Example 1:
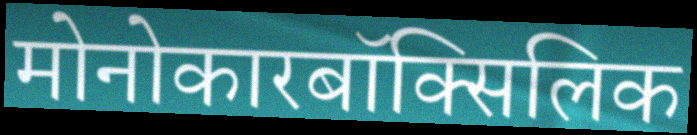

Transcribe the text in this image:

मोनोकारबॉक्सिलिक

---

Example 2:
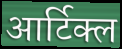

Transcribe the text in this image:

आर्टिक्ल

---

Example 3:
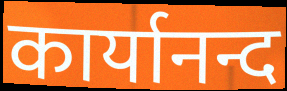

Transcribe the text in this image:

कार्यानन्द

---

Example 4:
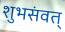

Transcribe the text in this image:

शुभसंवत्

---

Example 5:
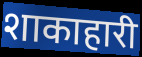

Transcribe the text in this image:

शाकाहारी